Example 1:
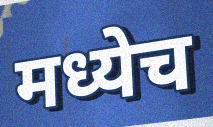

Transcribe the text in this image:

मध्येच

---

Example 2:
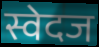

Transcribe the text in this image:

स्वेदज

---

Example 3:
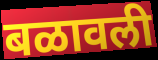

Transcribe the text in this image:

बळावली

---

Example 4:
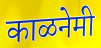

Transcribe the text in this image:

काळनेमी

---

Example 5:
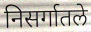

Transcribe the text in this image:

निसर्गातले